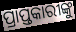
ପ୍ରାପ୍ତକାରୀଙ୍କୁ